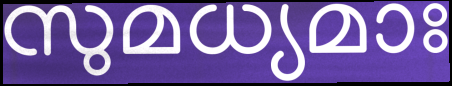
സുമധ്യമാഃ